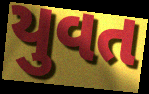
યુવત